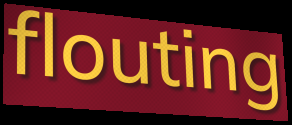
flouting